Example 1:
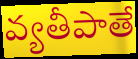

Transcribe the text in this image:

వ్యతీపాతే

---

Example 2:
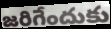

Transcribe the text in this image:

జరిగేందుకు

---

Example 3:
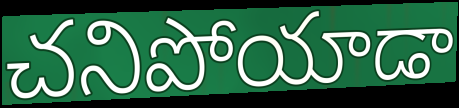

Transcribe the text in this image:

చనిపోయాడా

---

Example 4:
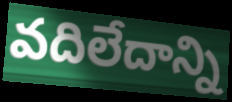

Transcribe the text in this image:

వదిలేదాన్ని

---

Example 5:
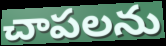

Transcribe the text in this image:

చాపలను